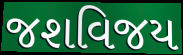
જશવિજય